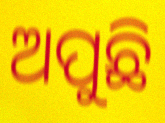
ଅପୁଛି